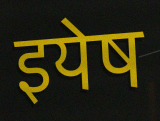
इयेष